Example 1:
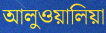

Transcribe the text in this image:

আলুওয়ালিয়া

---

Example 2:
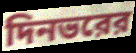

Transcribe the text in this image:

দিনভরের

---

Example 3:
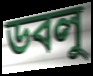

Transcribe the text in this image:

ডবলু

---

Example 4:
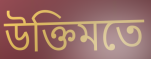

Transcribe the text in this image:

উক্তিমতে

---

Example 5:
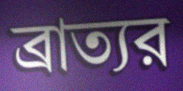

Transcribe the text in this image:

ব্রাত্যর